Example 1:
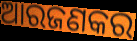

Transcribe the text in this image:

ଆରଜଣକର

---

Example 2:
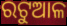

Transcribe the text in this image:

ରଟୁଆଳ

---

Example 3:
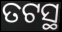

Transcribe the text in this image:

ତଟସ୍ଥ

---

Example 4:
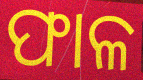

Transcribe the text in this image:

ଫାଳ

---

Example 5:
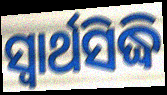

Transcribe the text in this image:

ସ୍ୱାର୍ଥସିଦ୍ଧି